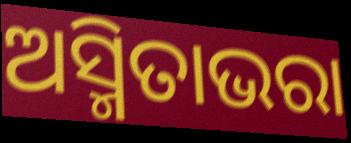
ଅସ୍ମିତାଭରା